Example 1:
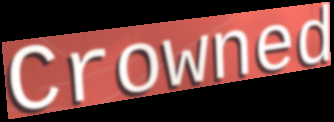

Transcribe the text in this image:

Crowned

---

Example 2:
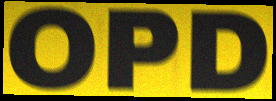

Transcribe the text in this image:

OPD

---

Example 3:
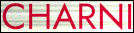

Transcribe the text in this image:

CHARNI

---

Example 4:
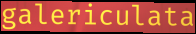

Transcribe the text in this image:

galericulata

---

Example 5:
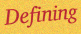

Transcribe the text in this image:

Defining